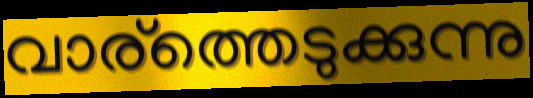
വാര്ത്തെടുക്കുന്നു